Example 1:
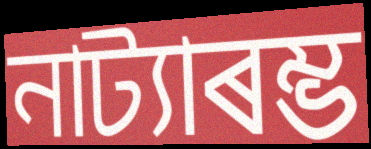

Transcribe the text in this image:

নাট্যাৰম্ভ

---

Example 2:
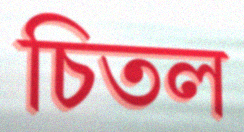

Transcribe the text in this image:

চিতল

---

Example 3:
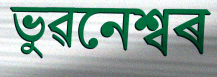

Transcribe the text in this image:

ভুৱনেশ্বৰ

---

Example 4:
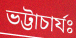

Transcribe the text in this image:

ভট্টাচাৰ্যঃ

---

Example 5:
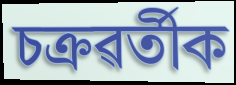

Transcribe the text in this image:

চক্ৰৱৰ্তীক